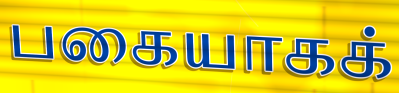
பகையாகக்